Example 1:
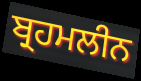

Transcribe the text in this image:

ਬ੍ਰਹਮਲੀਨ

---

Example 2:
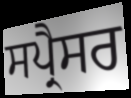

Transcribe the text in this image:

ਸਪ੍ਰੈਸਰ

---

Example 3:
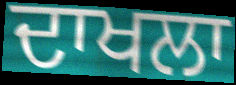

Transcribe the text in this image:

ਦਾਖਲਾ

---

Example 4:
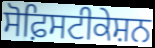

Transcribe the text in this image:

ਸੋਫ਼ਿਸਟੀਕੇਸ਼ਨ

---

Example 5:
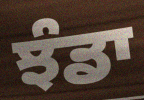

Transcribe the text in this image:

ਝੰਡਾ